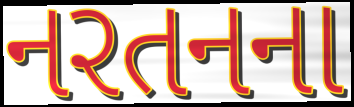
નરતનના